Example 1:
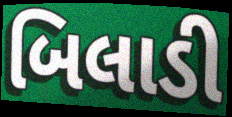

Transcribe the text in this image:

બિલાડી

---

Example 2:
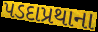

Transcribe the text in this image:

પડદાપ્રથાના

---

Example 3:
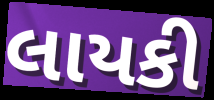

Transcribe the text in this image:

લાયકી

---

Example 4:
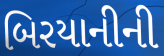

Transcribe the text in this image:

બિરયાનીની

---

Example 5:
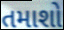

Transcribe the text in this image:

તમાશો